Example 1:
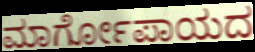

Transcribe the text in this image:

ಮಾರ್ಗೋಪಾಯದ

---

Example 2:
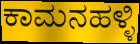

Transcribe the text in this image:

ಕಾಮನಹಳ್ಳಿ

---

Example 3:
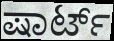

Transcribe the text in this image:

ಷಾರ್ಟ್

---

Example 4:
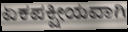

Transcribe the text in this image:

ಏಕಪಕ್ಷೀಯವಾಗಿ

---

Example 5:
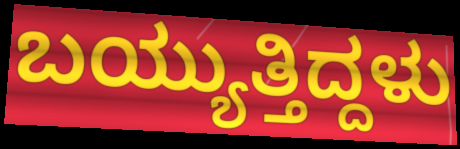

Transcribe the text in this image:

ಬಯ್ಯುತ್ತಿದ್ದಳು